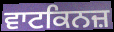
ਵਾਟਕਿਨਜ਼